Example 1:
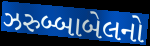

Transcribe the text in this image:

ઝરુબ્બાબેલનો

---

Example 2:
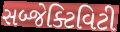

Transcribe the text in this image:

સબ્જેક્ટિવિટી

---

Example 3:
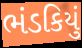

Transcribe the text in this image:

ભંડકિયું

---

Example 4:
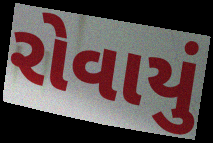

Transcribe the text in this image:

રોવાયું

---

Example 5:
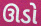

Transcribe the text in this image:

ઊડો